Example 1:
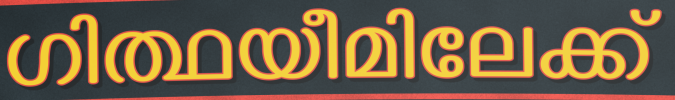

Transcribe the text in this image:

ഗിത്ഥയീമിലേക്ക്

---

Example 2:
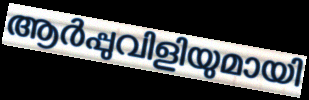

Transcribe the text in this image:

ആർപ്പുവിളിയുമായി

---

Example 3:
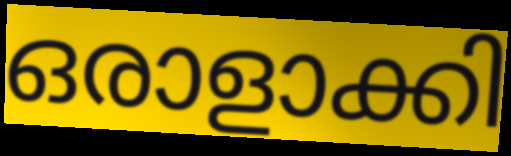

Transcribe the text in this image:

ഒരാളാക്കി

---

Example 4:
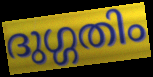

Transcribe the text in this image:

ദുഗ്ഗതിം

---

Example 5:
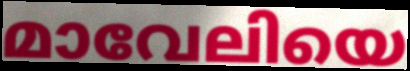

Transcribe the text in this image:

മാവേലിയെ